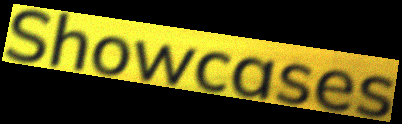
Showcases